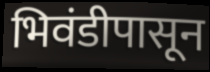
भिवंडीपासून